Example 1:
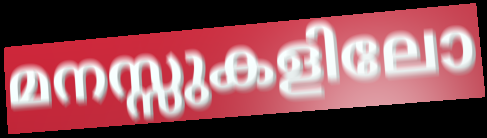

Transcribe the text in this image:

മനസ്സുകളിലോ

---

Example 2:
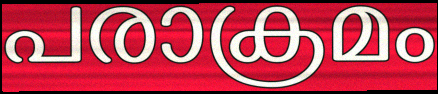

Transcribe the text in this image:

പരാക്രമം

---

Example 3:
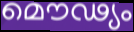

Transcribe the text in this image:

മൌഢ്യം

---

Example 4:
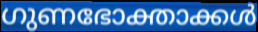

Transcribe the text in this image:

ഗുണഭോക്താക്കൾ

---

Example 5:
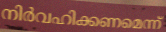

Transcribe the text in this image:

നിർവഹിക്കണമെന്ന്